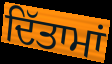
ਦਿੱਤਾਮਾਂ